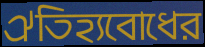
ঐতিহ্যবোধের